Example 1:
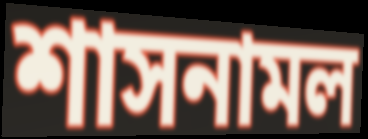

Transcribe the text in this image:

শাসনামল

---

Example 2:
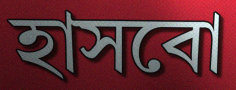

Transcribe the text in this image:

হাসবো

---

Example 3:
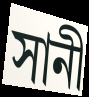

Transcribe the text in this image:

সানী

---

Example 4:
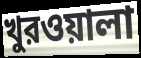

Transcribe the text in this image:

খুরওয়ালা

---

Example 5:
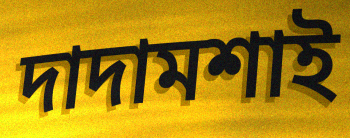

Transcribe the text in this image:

দাদামশাই